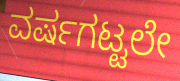
ವರ್ಷಗಟ್ಟಲೇ